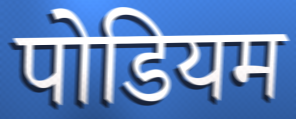
पोडियम